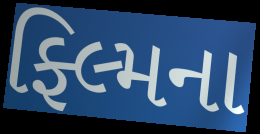
ફ્લ્મિના